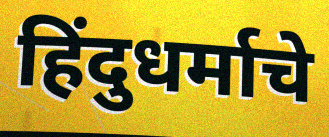
हिंदुधर्माचे